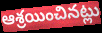
ఆశ్రయించినట్లు